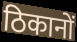
ठिकानों